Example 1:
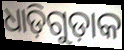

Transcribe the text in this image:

ଧାଡ଼ିଗୁଡ଼ାକ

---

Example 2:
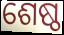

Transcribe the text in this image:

ଶେଷ୍ଠ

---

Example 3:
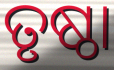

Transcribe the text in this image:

ତୃଷ୍ଠା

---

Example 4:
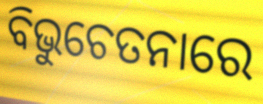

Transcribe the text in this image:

ବିଭୁଚେତନାରେ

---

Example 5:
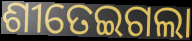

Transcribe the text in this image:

ଶୀତେଇଗଲା